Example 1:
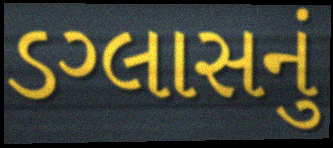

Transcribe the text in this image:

ડગ્લાસનું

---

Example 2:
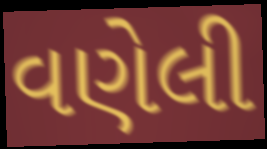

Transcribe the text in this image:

વણેલી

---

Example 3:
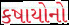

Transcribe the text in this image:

કષાયોનો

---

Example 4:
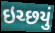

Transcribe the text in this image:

ઇચ્છયું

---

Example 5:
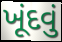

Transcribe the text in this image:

ખૂંદવું